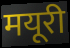
मयूरी